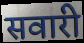
सवारी